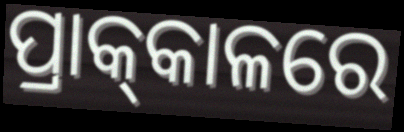
ପ୍ରାକ୍‍କାଳରେ